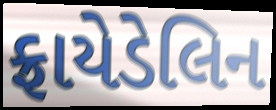
ફ્રાયેડેલિન